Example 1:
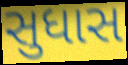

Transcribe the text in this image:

સુધાસ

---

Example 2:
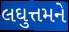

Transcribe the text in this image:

લઘુત્તમને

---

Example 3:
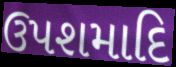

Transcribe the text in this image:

ઉપશમાદિ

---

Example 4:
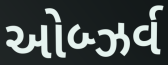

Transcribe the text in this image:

ઓબ્ઝર્વ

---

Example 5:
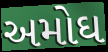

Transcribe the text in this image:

અમોઘ